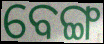
ବେଙ୍ଗ